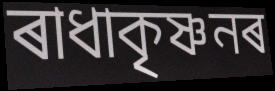
ৰাধাকৃষ্ণনৰ